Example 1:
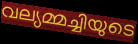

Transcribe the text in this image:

വല്യമ്മച്ചിയുടെ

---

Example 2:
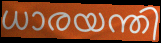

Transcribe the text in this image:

ധാരയന്തി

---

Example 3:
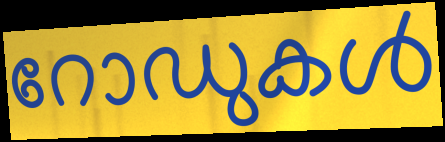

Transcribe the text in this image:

റോഡുകൾ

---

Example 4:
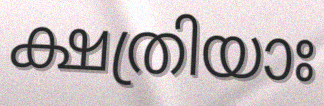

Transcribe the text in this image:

ക്ഷത്രിയാഃ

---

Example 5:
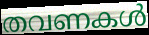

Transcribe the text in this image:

തവണകൾ